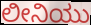
ಲೀನಿಯು